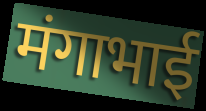
मंगाभाई